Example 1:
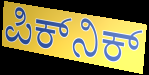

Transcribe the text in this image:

ಪಿಕ್‌ನಿಕ್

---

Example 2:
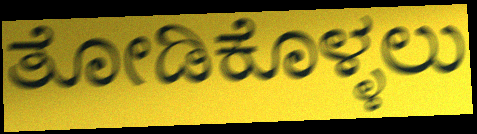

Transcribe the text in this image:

ತೋಡಿಕೊಳ್ಳಲು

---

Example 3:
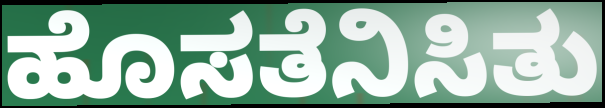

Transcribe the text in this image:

ಹೊಸತೆನಿಸಿತು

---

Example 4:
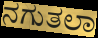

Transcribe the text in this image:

ನಗುತಲಾ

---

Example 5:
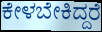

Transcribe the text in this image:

ಕೇಳಬೇಕಿದ್ದರೆ